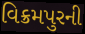
વિક્રમપુરની